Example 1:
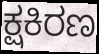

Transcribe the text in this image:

ಕ್ಷಕಿರಣ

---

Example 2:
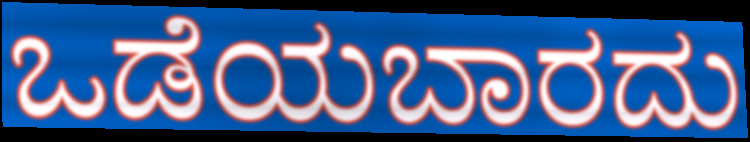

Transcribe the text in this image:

ಒಡೆಯಬಾರದು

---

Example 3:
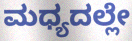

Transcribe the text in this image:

ಮಧ್ಯದಲ್ಲೇ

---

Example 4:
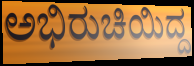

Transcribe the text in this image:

ಅಭಿರುಚಿಯಿದ್ದ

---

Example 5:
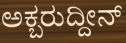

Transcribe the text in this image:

ಅಕ್ಬರುದ್ದೀನ್